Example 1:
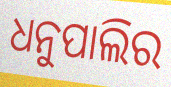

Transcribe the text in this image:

ଧନୁପାଲିର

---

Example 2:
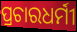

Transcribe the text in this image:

ପ୍ରଚାରଧର୍ମୀ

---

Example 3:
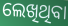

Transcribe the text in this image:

ଲେଖିଥିବା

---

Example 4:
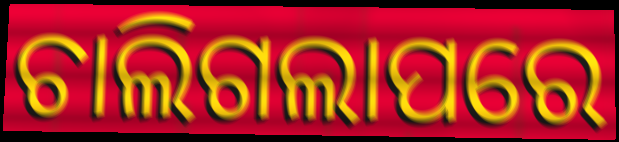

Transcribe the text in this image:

ଚାଲିଗଲାପରେ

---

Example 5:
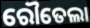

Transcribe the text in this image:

ରୌତେଲା